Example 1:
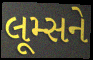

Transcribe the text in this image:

લૂમ્સને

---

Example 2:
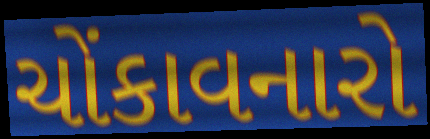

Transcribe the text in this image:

ચોંકાવનારો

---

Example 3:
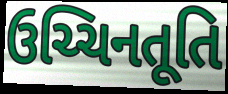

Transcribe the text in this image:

ઉચ્ચિનતૂતિ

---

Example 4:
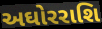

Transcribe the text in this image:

અઘોરરાશિ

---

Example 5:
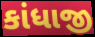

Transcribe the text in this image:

કાંધાજી